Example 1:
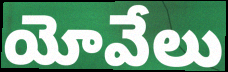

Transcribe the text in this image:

యోవేలు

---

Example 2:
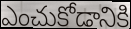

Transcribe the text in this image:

ఎంచుకోడానికి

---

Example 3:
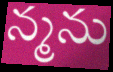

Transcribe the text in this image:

న్మను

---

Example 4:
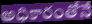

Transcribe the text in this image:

అధికారంతోనే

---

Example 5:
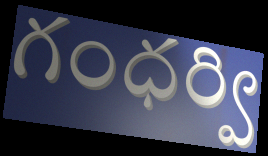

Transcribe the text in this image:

గంధర్వి